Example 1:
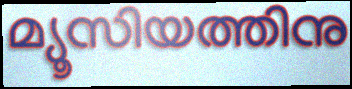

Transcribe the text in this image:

മ്യൂസിയത്തിനു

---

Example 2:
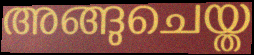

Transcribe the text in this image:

അങ്ങുചെയ്ത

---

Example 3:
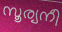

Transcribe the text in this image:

സൂര്യനീ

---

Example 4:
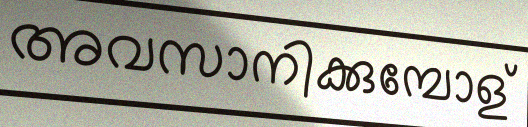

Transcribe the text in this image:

അവസാനിക്കുമ്പോള്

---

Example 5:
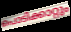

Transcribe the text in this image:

പൊടിക്കാറ്റും